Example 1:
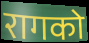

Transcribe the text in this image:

रागको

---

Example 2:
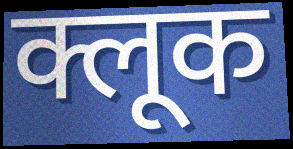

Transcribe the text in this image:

क्लूक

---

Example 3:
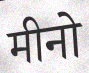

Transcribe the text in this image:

मीनो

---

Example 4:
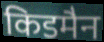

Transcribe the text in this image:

किडमैन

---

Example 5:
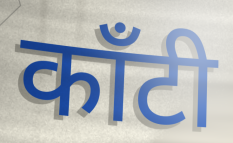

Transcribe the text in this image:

काँटी